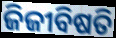
ଜିଜୀବିଷତି